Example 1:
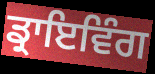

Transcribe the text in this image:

ਡ੍ਰਾਇਵਿੰਗ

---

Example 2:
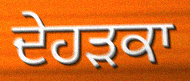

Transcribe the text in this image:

ਦੇਹੜਕਾ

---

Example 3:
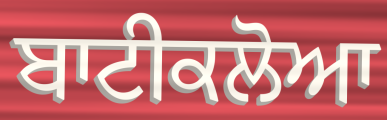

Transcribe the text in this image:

ਬਾਟੀਕਲੋਆ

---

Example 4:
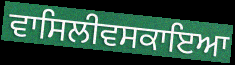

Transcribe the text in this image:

ਵਾਸਿਲੀਵਸਕਾਇਆ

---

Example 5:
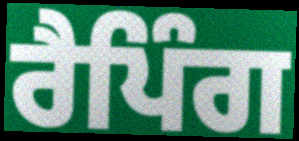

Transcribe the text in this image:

ਰੈਪਿੰਗ